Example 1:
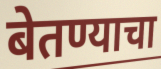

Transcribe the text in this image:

बेतण्याचा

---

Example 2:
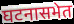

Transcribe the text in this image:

घटनासभेत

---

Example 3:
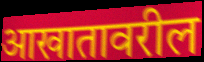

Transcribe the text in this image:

आखातावरील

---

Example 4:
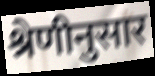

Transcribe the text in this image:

श्रेणीनुसार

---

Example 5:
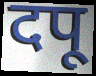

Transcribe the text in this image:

दपू